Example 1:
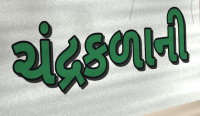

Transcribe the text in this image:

ચંદ્રકળાની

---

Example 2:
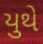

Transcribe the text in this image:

યુથે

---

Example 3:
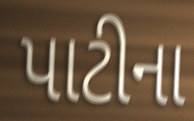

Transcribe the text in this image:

પાટીના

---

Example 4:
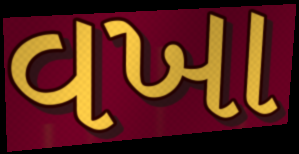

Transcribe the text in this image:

વખા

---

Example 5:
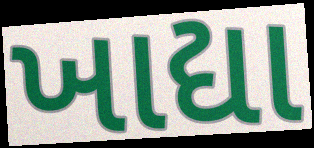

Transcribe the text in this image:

ખાદ્યા